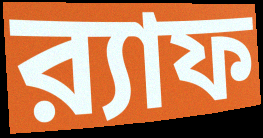
র‍্যাফ